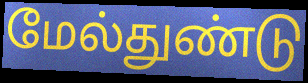
மேல்துண்டு